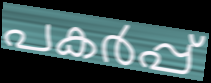
പകർപ്പ്